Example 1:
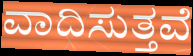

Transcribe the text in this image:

ವಾದಿಸುತ್ತವೆ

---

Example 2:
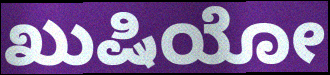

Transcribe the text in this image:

ಖುಷಿಯೋ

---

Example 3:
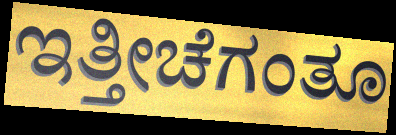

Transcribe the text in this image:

ಇತ್ತೀಚೆಗಂತೂ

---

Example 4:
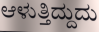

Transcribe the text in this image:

ಆಳುತ್ತಿದ್ದುದು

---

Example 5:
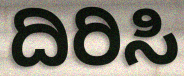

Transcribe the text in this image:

ದಿರಿಸಿ